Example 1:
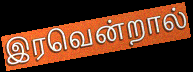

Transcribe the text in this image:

இரவென்றால்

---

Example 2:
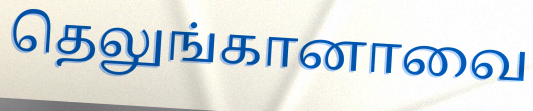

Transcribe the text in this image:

தெலுங்கானாவை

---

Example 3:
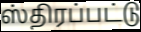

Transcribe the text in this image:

ஸ்திரப்பட்டு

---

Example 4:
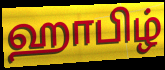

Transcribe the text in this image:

ஹாபிழ்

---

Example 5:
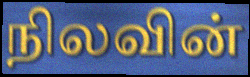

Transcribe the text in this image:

நிலவின்